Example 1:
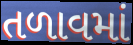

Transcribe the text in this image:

તળાવમાં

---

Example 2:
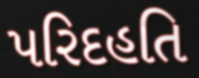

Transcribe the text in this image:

પરિદહતિ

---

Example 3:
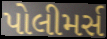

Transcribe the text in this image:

પોલીમર્સ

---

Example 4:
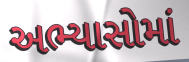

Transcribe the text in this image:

અભ્યાસોમાં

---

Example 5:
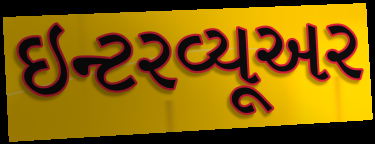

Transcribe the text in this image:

ઇન્ટરવ્યૂઅર